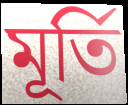
মূর্তি